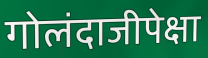
गोलंदाजीपेक्षा